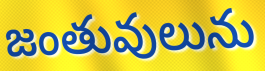
జంతువులును